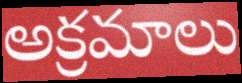
అక్రమాలు